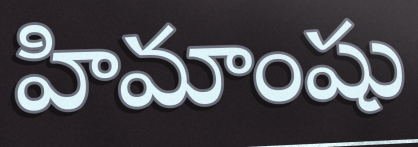
హిమాంషు